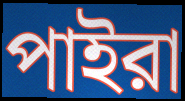
পাইরা